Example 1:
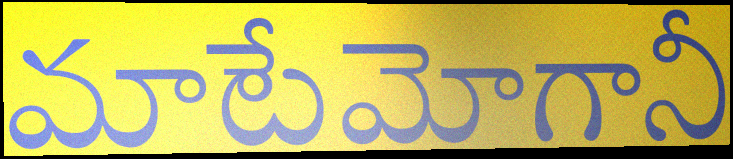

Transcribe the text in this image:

మాటేమోగానీ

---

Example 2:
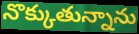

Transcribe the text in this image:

నొక్కుతున్నాను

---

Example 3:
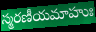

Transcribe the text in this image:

స్మరణీయమాహుః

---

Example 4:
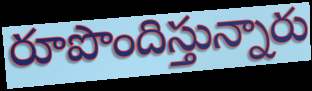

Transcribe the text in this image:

రూపొందిస్తున్నారు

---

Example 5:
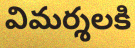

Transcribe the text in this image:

విమర్శలకి